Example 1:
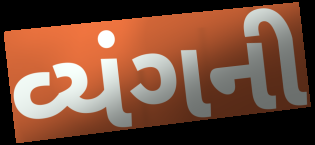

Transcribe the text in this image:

વ્યંગની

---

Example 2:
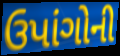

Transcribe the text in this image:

ઉપાંગોની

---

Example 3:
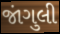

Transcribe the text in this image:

જાંગુલી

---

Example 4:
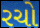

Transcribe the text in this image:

રચો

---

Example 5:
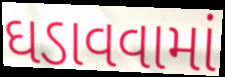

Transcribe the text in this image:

ઘડાવવામાં